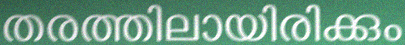
തരത്തിലായിരിക്കും